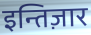
इन्तिज़ार